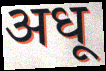
अधू